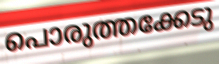
പൊരുത്തക്കേടു